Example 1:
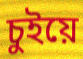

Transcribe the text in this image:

চুইয়ে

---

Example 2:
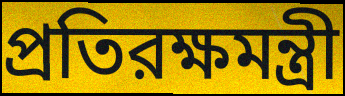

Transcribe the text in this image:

প্রতিরক্ষমন্ত্রী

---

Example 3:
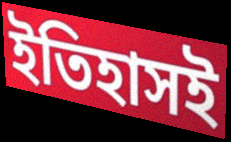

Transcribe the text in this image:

ইতিহাসই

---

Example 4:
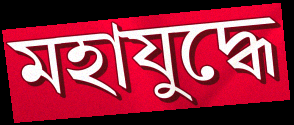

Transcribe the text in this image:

মহাযুদ্ধে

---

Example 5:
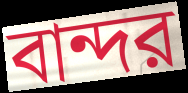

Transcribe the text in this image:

বান্দর